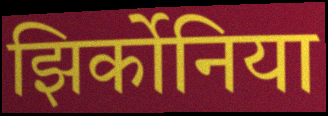
झिर्कोनिया